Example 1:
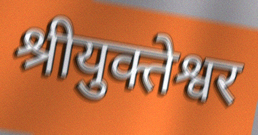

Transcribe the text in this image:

श्रीयुक्तेश्वर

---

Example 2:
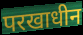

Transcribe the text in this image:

परखाधीन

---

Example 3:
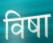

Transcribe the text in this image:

विषा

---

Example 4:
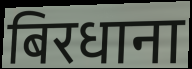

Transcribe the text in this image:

बिरधाना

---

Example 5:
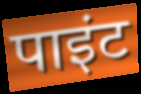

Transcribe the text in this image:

पाइंट